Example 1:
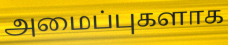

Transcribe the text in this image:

அமைப்புகளாக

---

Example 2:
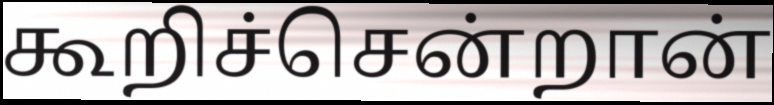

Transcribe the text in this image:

கூறிச்சென்றான்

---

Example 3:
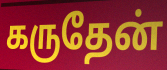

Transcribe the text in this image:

கருதேன்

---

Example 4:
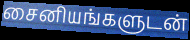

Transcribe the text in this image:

சைனியங்களுடன்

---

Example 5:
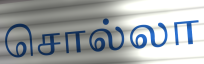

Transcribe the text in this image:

சொல்லா